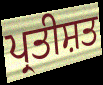
ਪ੍ਰਤੀਸ਼ਤ